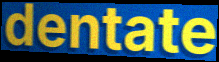
dentate